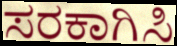
ಸರಕಾಗಿಸಿ